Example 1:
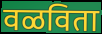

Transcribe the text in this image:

वळविता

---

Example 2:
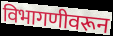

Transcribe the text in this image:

विभागणीवरून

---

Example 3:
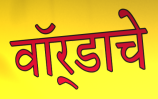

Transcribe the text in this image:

वॉर्डाचे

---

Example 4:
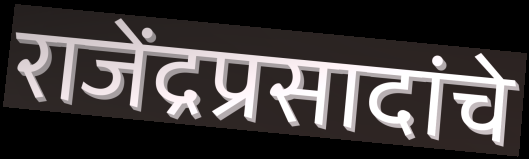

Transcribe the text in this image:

राजेंद्रप्रसादांचे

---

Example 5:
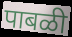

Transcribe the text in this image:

पाबळी